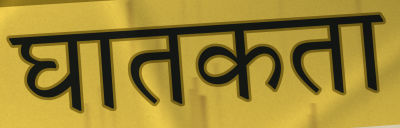
घातकता